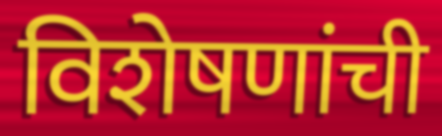
विशेषणांची